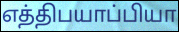
எத்திபயாப்பியா